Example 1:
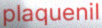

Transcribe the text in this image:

plaquenil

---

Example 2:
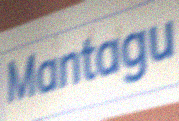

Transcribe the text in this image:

Mantagu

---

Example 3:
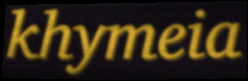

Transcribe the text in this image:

khymeia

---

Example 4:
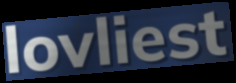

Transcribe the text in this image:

lovliest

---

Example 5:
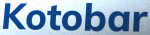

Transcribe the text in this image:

Kotobar